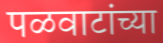
पळवाटांच्या